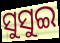
ସୁସୁଇ